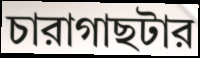
চারাগাছটার